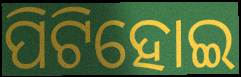
ପିଟିହୋଇ